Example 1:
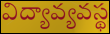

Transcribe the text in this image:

విద్యావ్యవస్థ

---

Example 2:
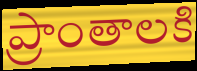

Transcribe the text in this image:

ప్రాంతాలకి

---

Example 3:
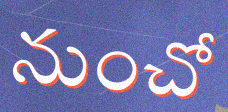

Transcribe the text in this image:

నుంచో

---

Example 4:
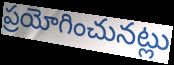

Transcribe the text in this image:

ప్రయోగించునట్లు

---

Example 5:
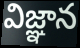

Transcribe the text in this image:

విజ్ఞాన